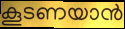
കൂടണയാൻ